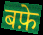
बफ़े